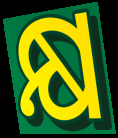
କ୍ଷ